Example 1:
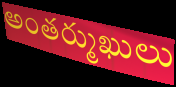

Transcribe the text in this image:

అంతర్ముఖులు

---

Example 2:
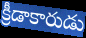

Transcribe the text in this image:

క్రీడాకారుడు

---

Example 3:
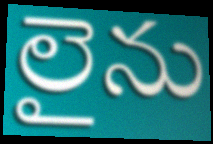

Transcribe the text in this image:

లైను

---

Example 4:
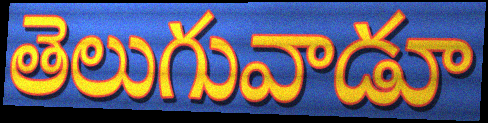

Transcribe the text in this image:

తెలుగువాడూ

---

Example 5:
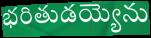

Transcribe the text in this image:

భరితుడయ్యెను